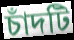
চাঁদটি